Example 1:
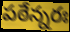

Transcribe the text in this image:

పఠేన్నరః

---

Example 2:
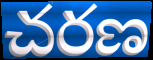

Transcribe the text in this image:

చరణ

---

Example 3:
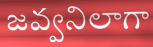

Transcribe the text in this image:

జవ్వనిలాగా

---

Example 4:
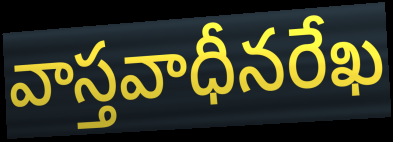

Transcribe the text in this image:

వాస్తవాధీనరేఖ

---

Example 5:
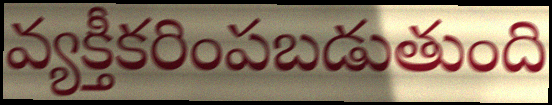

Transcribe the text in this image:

వ్యక్తీకరింపబడుతుంది